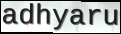
adhyaru